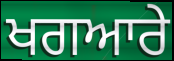
ਖਗਆਰੇ